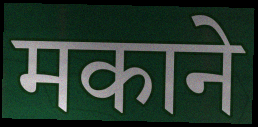
मकाने